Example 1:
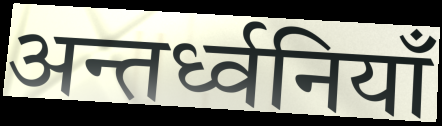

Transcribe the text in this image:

अन्तर्ध्वनियाँ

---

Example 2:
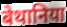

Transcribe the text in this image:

बेथानिया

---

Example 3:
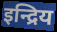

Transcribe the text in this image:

इन्द्रिय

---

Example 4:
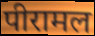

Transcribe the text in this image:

पीरामल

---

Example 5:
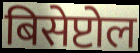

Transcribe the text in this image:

बिसेप्टोल